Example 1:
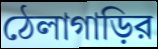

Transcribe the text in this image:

ঠেলাগাড়ির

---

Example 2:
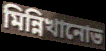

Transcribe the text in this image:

মিন্নিখানোভ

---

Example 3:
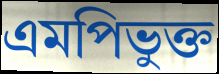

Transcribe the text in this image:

এমপিভুক্ত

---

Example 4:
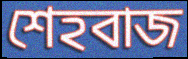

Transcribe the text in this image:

শেহবাজ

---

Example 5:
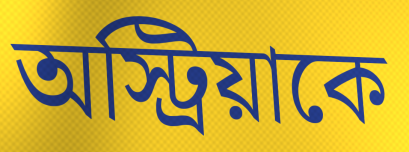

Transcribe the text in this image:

অস্ট্রিয়াকে